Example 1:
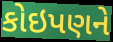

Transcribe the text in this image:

કોઇપણને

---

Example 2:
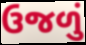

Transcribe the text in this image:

ઉજળું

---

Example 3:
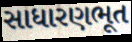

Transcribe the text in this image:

સાધારણભૂત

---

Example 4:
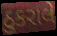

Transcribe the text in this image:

ઠુકરાલે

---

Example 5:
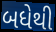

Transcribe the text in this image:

બધેથી